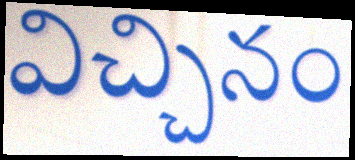
విచ్చినం